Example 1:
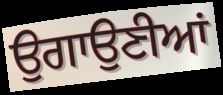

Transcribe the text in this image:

ਉਗਾਉਣੀਆਂ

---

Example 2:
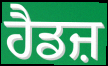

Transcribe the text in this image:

ਹੈਡਜ਼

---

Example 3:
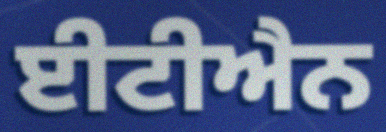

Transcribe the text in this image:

ਈਟੀਐਨ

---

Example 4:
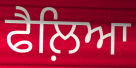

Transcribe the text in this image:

ਫੈਲ਼ਿਆ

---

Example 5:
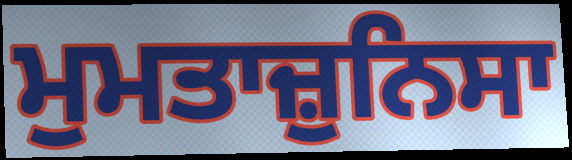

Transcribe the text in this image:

ਮੁਮਤਾਜ਼ੁਨਿਸਾ